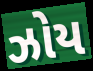
ઝોય